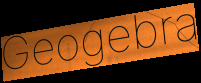
Geogebra